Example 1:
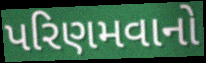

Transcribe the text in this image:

પરિણમવાનો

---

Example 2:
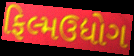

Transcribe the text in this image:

ફિલ્મઉદ્યોગ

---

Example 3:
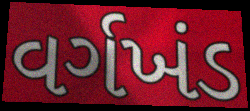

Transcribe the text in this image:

વર્ગખંડ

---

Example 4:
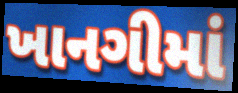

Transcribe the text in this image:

ખાનગીમાં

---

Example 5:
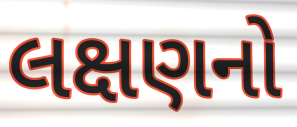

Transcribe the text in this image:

લક્ષણનો